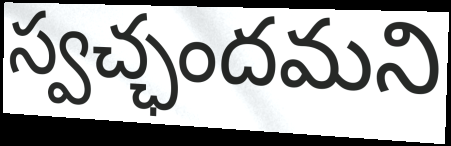
స్వచ్ఛందమని